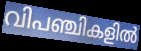
വിപഞ്ചികളിൽ